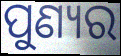
ପୁଣ୍ୟର